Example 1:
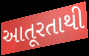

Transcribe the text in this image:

આતૂરતાથી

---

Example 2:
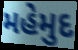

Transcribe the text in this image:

મહેમુદ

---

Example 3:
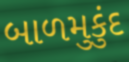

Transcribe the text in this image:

બાળમુકુંદ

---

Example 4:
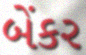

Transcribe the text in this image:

બેંકર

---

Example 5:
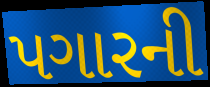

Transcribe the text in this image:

પગારની